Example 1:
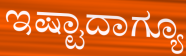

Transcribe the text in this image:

ಇಷ್ಟಾದಾಗ್ಯೂ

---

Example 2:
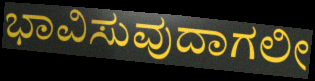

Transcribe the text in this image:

ಭಾವಿಸುವುದಾಗಲೀ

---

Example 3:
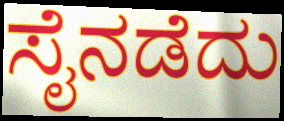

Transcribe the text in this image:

ಸೈನಡೆದು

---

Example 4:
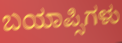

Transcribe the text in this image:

ಬಯಾಪ್ಸಿಗಳು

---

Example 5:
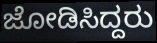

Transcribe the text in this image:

ಜೋಡಿಸಿದ್ದರು